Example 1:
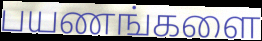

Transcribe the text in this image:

பயணங்களை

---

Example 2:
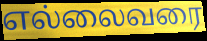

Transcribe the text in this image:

எல்லைவரை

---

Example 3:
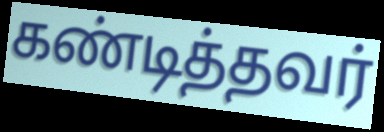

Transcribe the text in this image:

கண்டித்தவர்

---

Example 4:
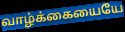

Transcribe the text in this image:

வாழ்க்கையையே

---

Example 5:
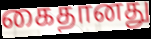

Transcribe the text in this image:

கைதானது